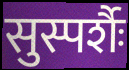
सुस्पर्शैः